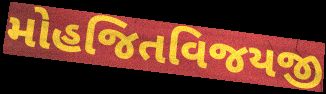
મોહજિતવિજયજી